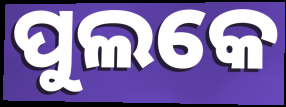
ପୁଲକେ